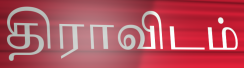
திராவிடம்